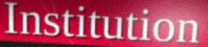
Institution